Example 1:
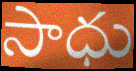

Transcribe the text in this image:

సాధు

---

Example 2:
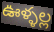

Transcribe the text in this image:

ఊళ్ళల్ల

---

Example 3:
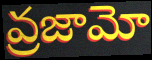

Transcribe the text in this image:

వ్రజామో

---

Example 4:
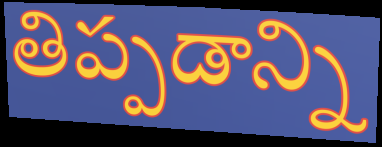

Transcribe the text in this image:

తిప్పడాన్ని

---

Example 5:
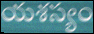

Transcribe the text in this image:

యశస్యం